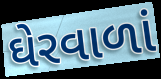
ઘેરવાળાં